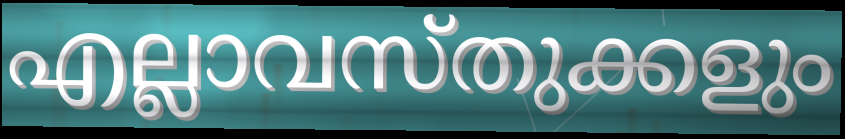
എല്ലാവസ്തുക്കളും